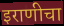
इराणीचा